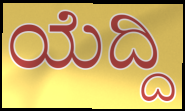
ಯೆದ್ದಿ